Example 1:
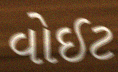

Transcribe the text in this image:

વોઈટ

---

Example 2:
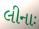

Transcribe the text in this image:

લીનાઃ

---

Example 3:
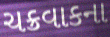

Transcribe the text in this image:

ચક્રવાકના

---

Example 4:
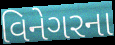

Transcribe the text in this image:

વિનેગરના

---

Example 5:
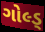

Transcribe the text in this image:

ગોલ્ડ્